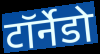
टॉर्नेडो